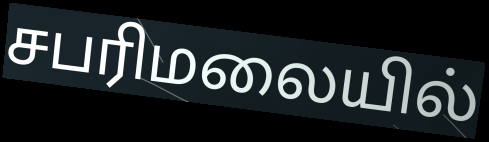
சபரிமலையில்